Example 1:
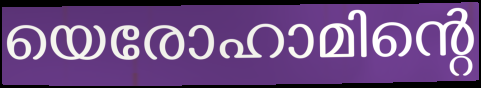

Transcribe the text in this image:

യെരോഹാമിന്റെ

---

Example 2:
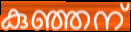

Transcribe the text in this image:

കുഞ്ഞന്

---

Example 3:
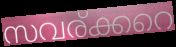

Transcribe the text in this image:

സവര്ക്കറെ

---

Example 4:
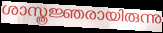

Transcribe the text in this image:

ശാസ്ത്രജ്ഞരായിരുന്നു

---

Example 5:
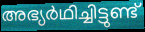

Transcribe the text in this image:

അഭ്യർഥിച്ചിട്ടുണ്ട്